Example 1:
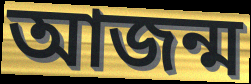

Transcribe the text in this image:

আজন্ম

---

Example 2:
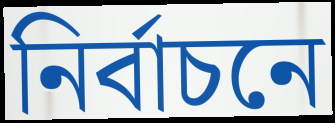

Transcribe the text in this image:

নিৰ্বাচনে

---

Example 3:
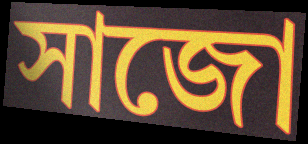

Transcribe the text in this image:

সাজো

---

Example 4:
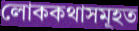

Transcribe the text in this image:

লোককথাসমূহত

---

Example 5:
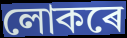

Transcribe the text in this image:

লোকৰে